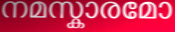
നമസ്കാരമോ